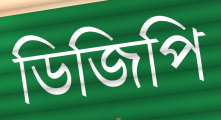
ডিজিপি